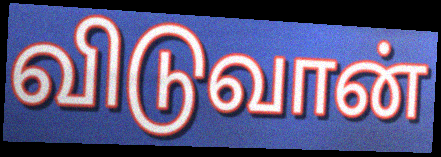
விடுவான்